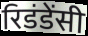
रिडंडेंसी